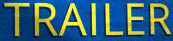
TRAILER